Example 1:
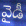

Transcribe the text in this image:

వైడీ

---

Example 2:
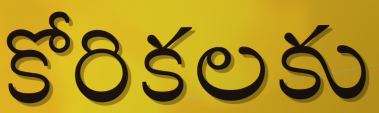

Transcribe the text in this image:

కోరికలకు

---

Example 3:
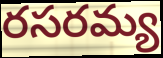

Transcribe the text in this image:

రసరమ్య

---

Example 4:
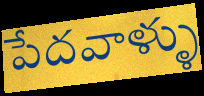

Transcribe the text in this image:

పేదవాళ్ళు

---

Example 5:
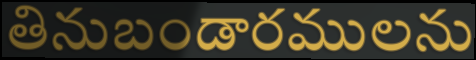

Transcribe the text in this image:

తినుబండారములను